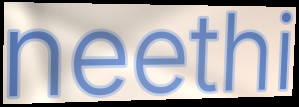
neethi